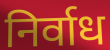
निर्वाध